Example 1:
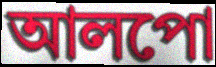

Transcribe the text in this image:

আলপো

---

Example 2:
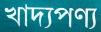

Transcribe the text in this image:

খাদ্যপণ্য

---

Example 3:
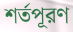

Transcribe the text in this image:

শর্তপূরণ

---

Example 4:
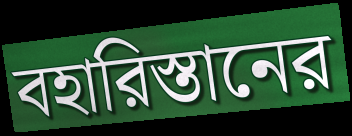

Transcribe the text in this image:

বহারিস্তানের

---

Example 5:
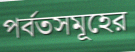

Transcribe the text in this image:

পর্বতসমূহের